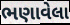
ભણાવેલા